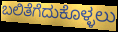
ಬಲಿತೆಗೆದುಕೊಳ್ಳಲು